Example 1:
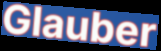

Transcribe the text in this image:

Glauber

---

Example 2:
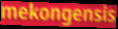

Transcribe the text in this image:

mekongensis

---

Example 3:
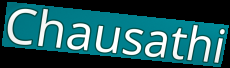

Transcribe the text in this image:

Chausathi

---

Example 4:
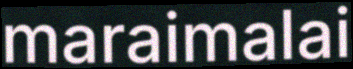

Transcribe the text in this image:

maraimalai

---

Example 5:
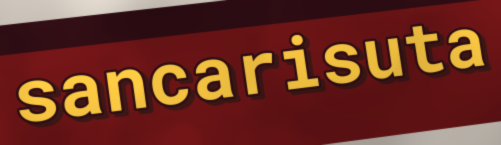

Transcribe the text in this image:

sancarisuta